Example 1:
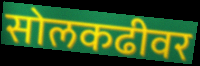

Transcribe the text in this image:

सोलकढीवर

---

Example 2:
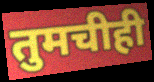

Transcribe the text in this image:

तुमचीही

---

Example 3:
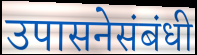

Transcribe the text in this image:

उपासनेसंबंधी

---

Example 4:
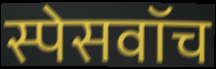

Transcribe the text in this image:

स्पेसवॉच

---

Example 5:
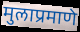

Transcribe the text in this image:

मुलाप्रमाणे